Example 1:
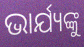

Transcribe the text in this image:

ଭାର୍ଯ୍ୟଙ୍କୁ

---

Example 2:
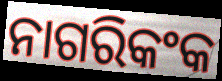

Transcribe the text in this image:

ନାଗରିକଂକ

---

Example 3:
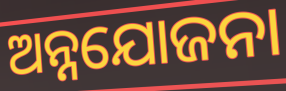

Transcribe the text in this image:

ଅନ୍ନଯୋଜନା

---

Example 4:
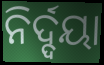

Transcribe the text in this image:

ନିର୍ଦ୍ଦୟା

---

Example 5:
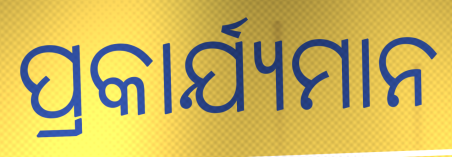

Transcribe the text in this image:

ପ୍ରକାର୍ଯ୍ୟମାନ